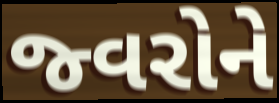
જ્વરોને